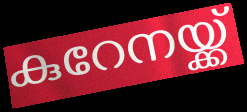
കുറേനയ്ക്ക്